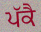
ਪੱਕੈ